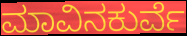
ಮಾವಿನಕುರ್ವೆ